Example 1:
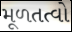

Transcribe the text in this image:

મૂળતત્વો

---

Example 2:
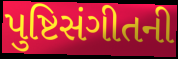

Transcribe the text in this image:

પુષ્ટિસંગીતની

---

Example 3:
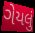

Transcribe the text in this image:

ગેયલું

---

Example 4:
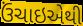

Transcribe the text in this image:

ઉંચાઇએથી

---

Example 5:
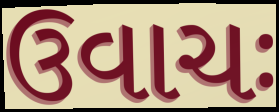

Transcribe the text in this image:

ઉવાચઃ